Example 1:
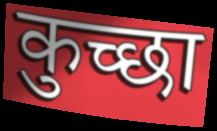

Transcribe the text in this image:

कुच्छा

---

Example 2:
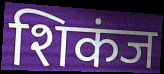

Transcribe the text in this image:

शिकंज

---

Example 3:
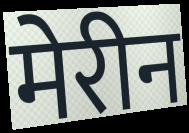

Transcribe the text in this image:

मेरीन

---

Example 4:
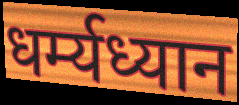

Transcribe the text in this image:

धर्म्यध्यान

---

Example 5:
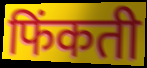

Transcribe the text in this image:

फिंकती